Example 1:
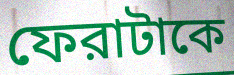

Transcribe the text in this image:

ফেরাটাকে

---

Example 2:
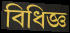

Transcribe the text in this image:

বিধিজ্ঞ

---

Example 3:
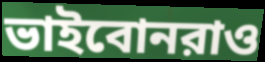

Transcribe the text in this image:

ভাইবোনরাও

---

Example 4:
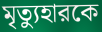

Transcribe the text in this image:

মৃত্যুহারকে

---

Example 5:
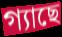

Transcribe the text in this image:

গ্যাছে